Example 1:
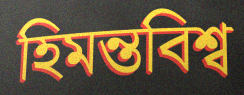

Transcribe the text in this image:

হিমন্তবিশ্ব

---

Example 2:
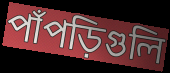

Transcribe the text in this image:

পাঁপড়িগুলি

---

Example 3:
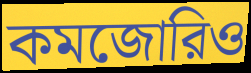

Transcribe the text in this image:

কমজোরিও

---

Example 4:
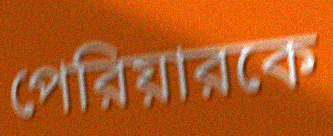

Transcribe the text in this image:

পেরিয়ারকে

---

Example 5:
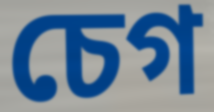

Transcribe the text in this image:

চেগ